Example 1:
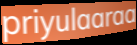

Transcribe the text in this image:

priyulaaraa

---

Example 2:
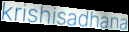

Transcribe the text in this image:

krishisadhana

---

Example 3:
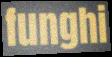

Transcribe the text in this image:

funghi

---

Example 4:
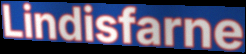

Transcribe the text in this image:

Lindisfarne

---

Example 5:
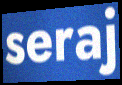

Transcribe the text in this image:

seraj